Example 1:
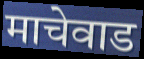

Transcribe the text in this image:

माचेवाड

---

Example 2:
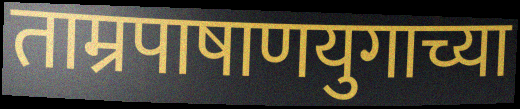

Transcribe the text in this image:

ताम्रपाषाणयुगाच्या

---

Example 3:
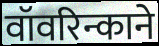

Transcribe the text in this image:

वॉवरिन्काने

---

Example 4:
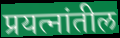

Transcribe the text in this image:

प्रयत्नांतील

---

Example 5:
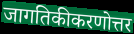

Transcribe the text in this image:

जागतिकीकरणोत्तर